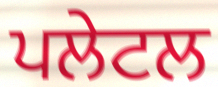
ਪਲੇਟਲ